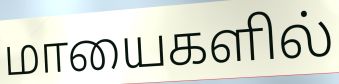
மாயைகளில்